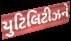
યુટિલિટીઝને